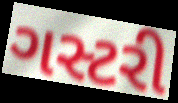
ગસ્ટરી